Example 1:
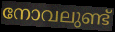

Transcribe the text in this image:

നോവലുണ്ട്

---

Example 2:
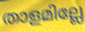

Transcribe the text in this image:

താളമില്ലേ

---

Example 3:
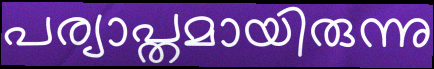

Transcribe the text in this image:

പര്യാപ്തമായിരുന്നു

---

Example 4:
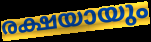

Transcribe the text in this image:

രക്ഷയായും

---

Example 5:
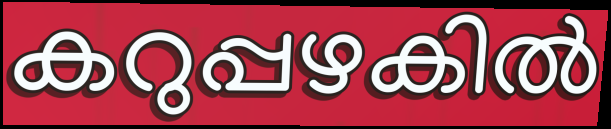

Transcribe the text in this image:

കറുപ്പഴകിൽ